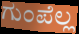
ಗುಂಪೆಲ್ಲ